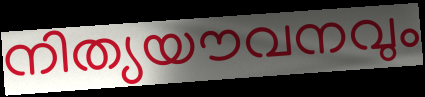
നിത്യയൗവനവും